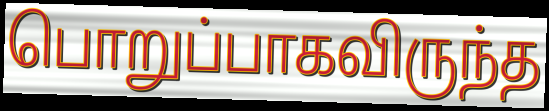
பொறுப்பாகவிருந்த